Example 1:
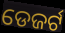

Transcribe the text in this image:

ଡେଜର୍ଟ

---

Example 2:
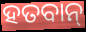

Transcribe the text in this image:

ହତବାନ୍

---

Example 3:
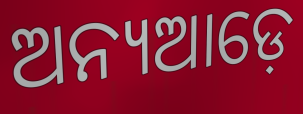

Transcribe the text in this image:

ଅନ୍ୟଆଡ଼େ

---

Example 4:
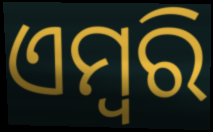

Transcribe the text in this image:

ଏମ୍ବରି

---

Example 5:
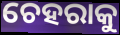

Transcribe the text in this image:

ଚେହରାକୁ